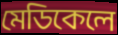
মেডিকেলে